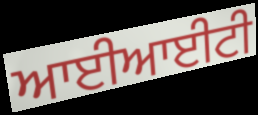
ਆਈਆਈਟੀ